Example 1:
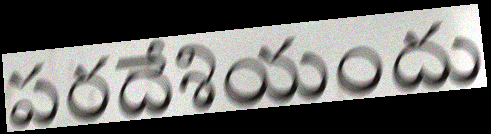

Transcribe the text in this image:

పరదేశియందు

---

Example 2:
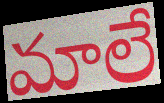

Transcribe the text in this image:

మాలే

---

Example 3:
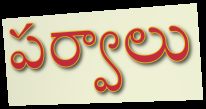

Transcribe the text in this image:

పర్వాలు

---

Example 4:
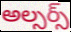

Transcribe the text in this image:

అల్సర్స్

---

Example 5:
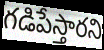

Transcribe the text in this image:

గడిపేస్తారని